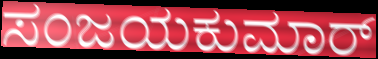
ಸಂಜಯಕುಮಾರ್